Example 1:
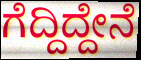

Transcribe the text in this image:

ಗೆದ್ದಿದ್ದೇನೆ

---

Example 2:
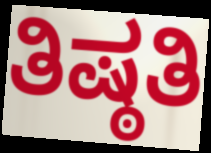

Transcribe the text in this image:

ತಿಷ್ಠತಿ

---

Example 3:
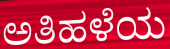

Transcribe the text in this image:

ಅತಿಹಳೆಯ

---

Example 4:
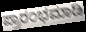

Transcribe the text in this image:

ಪ್ರಾರಂಭಮಾಡಿ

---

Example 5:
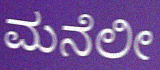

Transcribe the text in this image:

ಮನೆಲೀ